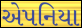
એપનિયા